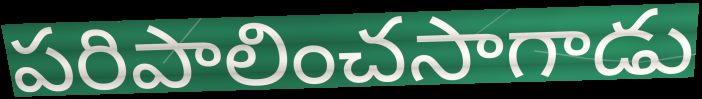
పరిపాలించసాగాడు